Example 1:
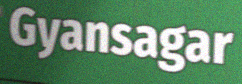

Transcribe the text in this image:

Gyansagar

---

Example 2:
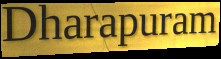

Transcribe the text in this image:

Dharapuram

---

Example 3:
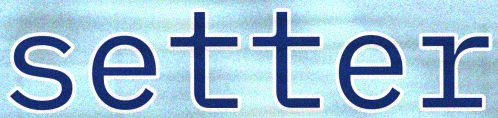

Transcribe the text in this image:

setter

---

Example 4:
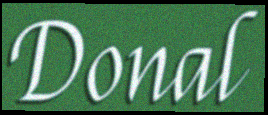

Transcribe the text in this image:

Donal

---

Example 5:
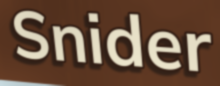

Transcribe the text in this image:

Snider